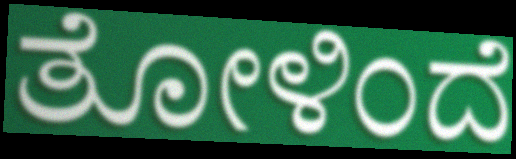
ತೋಳಿಂದೆ